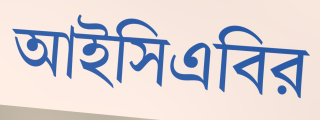
আইসিএবির